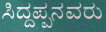
ಸಿದ್ದಪ್ಪನವರು